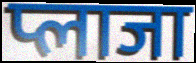
प्लाजा